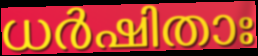
ധർഷിതാഃ